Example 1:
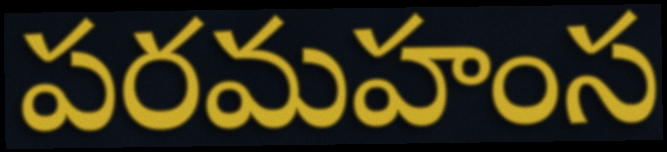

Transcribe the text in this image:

పరమహంస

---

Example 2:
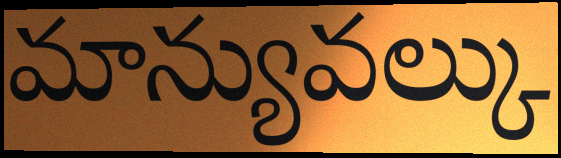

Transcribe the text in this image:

మాన్యువల్కు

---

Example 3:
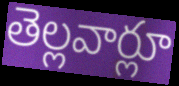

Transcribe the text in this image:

తెల్లవార్లూ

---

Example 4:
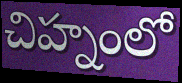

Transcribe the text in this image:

చిహ్నంలో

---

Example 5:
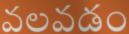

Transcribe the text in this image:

వలవడం